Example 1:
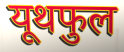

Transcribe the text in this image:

यूथफुल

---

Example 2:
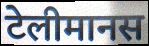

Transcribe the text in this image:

टेलीमानस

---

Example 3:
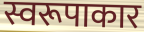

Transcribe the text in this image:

स्वरूपाकार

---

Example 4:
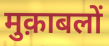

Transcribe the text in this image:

मुक़ाबलों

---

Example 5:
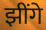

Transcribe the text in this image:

झींगे